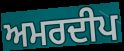
ਅਮਰਦੀਪ